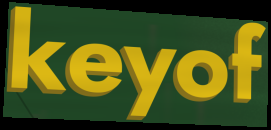
keyof